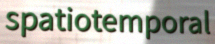
spatiotemporal